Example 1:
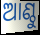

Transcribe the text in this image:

ଆଣ୍ଠୁ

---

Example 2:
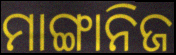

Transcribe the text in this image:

ମାଙ୍ଗାନିଜ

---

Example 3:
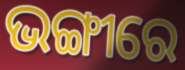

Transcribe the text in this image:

ଭଙ୍ଗୀରେ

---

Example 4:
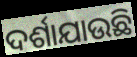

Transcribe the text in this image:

ଦର୍ଶାଯାଉଛି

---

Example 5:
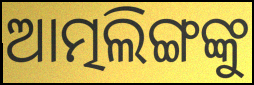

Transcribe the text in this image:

ଆତ୍ମଲିଙ୍ଗଙ୍କୁ